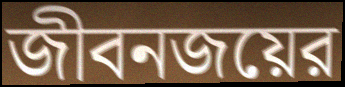
জীবনজয়ের